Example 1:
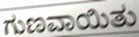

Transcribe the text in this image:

ಗುಣವಾಯಿತು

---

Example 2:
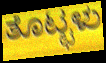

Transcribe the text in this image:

ತೊಟ್ಟಳು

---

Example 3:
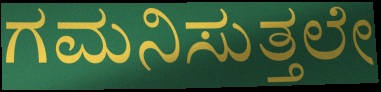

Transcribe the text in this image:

ಗಮನಿಸುತ್ತಲೇ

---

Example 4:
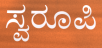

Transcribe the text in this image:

ಸ್ವರೂಪಿ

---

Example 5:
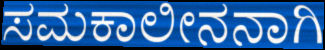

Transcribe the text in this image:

ಸಮಕಾಲೀನನಾಗಿ